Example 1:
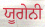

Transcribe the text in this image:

ਯੂਗੇਨੀ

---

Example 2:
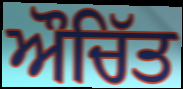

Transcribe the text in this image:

ਔਚਿੱਤ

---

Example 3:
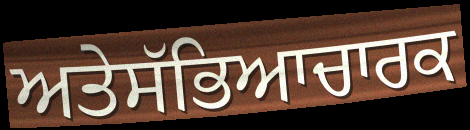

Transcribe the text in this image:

ਅਤੇਸੱਭਿਆਚਾਰਕ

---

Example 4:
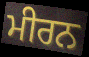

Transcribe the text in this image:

ਮੀਰਨ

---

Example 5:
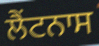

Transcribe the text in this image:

ਲੈਂਟਨਾਸ